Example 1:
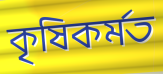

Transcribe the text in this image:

কৃষিকৰ্মত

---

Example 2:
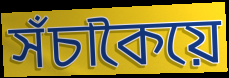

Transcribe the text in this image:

সঁচাকৈয়ে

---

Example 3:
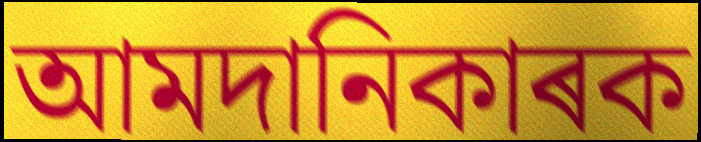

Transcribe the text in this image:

আমদানিকাৰক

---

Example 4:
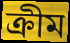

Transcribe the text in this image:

ক্ৰীম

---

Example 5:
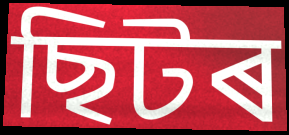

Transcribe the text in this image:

ছিটৰ